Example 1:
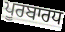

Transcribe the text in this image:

ਪੂਰਬਾਰਧ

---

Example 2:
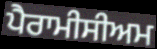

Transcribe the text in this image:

ਪੈਰਾਮੀਸੀਅਮ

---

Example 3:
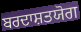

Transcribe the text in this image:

ਬਰਦਾਸ਼ਤਯੋਗ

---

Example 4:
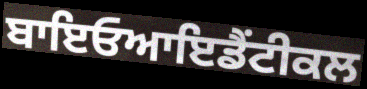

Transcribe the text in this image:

ਬਾਇਓਆਇਡੈਂਟੀਕਲ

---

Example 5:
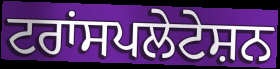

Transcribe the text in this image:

ਟਰਾਂਸਪਲੇਟੇਸ਼ਨ